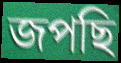
জপছি